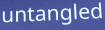
untangled